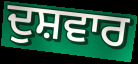
ਦੁਸ਼ਵਾਰ